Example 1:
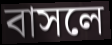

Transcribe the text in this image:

বাসলে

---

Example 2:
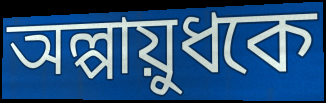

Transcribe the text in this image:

অল্পায়ুধকে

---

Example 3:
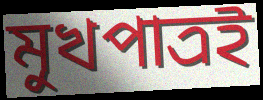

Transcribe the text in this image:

মুখপাত্রই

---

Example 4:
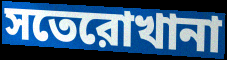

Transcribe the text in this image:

সতেরোখানা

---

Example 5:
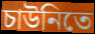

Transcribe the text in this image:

চাউনিতে